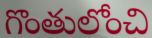
గొంతులోంచి